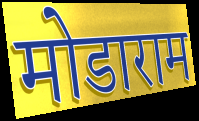
मोडाराम